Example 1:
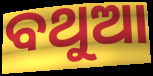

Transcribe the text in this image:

ବଥୁଆ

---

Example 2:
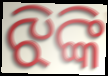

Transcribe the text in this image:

ଝିଙ୍କି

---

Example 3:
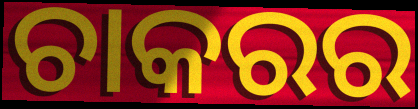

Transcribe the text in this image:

ଚାକରର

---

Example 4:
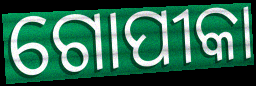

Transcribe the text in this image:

ଗୋପୀକା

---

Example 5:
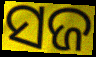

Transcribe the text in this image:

ସଜ